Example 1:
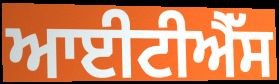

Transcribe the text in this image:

ਆਈਟੀਐੱਸ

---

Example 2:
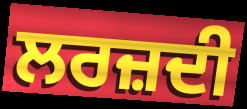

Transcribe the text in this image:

ਲਰਜ਼ਦੀ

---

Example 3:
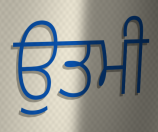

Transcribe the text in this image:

ਉਤਮੀ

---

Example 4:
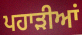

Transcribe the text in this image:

ਪਹਾਡ਼ੀਆਂ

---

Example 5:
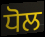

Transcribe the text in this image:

ਧੋਲ